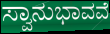
ಸ್ವಾನುಭಾವವೆ